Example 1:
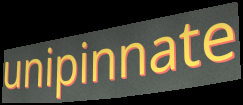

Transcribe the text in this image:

unipinnate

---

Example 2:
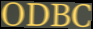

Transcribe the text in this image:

ODBC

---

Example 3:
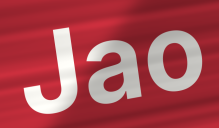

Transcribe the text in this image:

Jao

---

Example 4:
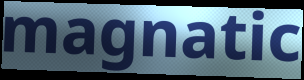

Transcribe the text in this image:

magnatic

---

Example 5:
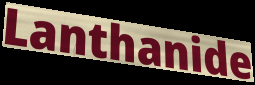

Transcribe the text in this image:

Lanthanide